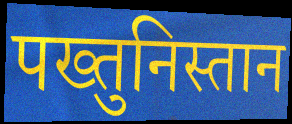
पख्तुनिस्तान